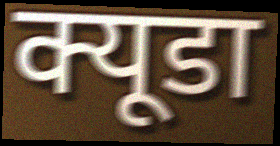
क्यूडा